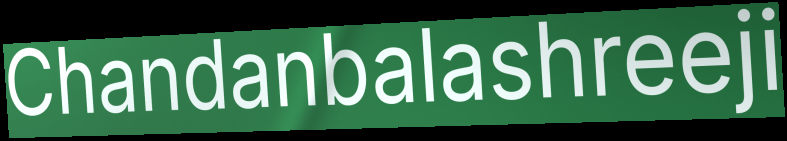
Chandanbalashreeji